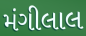
મંગીલાલ